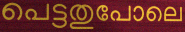
പെട്ടതുപോലെ